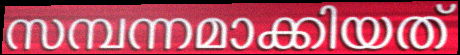
സമ്പന്നമാക്കിയത്